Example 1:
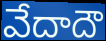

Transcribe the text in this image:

వేదాదౌ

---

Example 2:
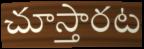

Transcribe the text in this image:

చూస్తారట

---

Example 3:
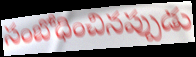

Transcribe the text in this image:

సంబోధించినప్పుడు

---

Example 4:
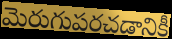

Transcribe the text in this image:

మెరుగుపరచడానికీ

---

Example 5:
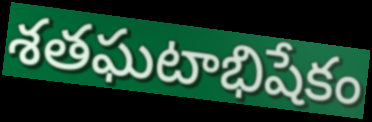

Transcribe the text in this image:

శతఘటాభిషేకం